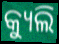
କ୍ୟୁଲି